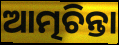
ଆତ୍ମଚିନ୍ତା